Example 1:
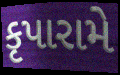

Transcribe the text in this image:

કૃપારામે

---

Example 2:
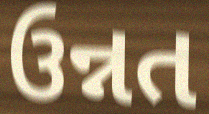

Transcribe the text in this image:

ઉન્નત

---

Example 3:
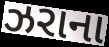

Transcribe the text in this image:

ઝરાના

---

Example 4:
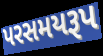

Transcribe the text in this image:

પરસમયરૂપ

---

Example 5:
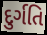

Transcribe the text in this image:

દુર્ગતિ